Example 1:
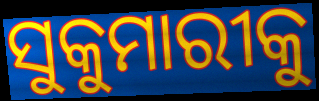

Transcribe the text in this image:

ସୁକୁମାରୀକୁ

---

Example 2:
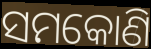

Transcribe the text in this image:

ସମକୋଣି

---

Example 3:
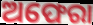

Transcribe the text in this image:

ଅଫେରା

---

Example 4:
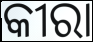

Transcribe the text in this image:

କୀରା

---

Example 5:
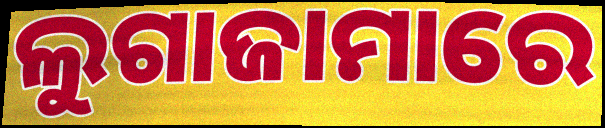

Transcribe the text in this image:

ଲୁଗାଜାମାରେ